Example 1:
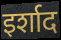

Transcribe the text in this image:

इर्शाद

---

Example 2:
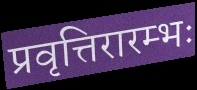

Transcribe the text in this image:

प्रवृत्तिरारम्भः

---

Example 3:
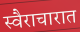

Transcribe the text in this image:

स्वैराचारात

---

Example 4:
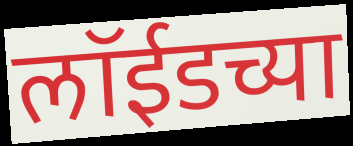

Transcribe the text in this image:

लॉईडच्या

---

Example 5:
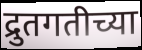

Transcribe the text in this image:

द्रुतगतीच्या